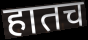
हातच